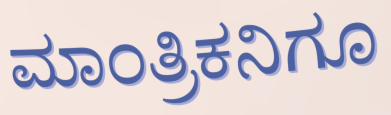
ಮಾಂತ್ರಿಕನಿಗೂ